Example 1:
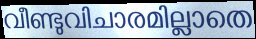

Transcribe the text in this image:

വീണ്ടുവിചാരമില്ലാതെ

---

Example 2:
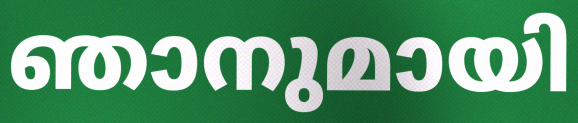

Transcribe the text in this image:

ഞാനുമായി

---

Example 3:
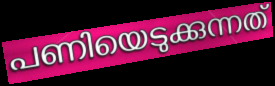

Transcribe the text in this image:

പണിയെടുക്കുന്നത്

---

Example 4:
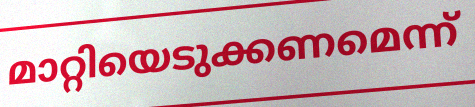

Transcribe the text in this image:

മാറ്റിയെടുക്കണമെന്ന്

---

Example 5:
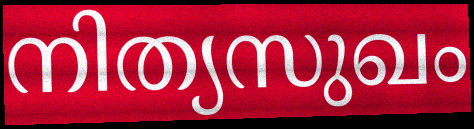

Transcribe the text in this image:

നിത്യസുഖം